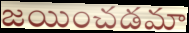
జయించడమా